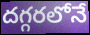
దగ్గరలోనే